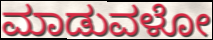
ಮಾಡುವಳೋ